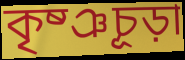
কৃষ্ঞচূড়া